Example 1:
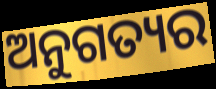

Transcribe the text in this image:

ଅନୁଗତ୍ୟର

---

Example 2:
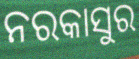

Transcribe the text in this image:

ନରକାସୁର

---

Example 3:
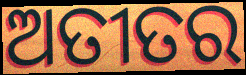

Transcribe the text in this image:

ଅତୀତର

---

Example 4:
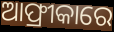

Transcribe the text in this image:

ଆଫ୍ରୀକାରେ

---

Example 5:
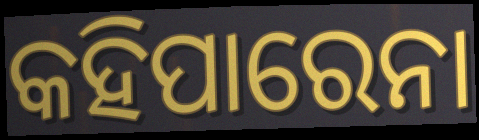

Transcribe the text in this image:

କହିପାରେନା